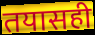
तयासही